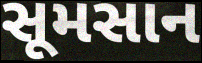
સૂમસાન